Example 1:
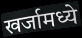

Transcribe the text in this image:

खर्जामध्ये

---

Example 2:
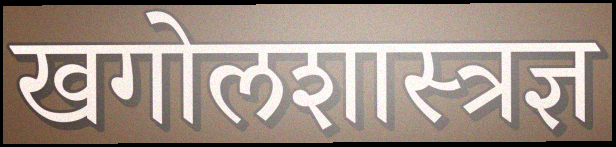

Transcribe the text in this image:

खगोलशास्त्रज्ञ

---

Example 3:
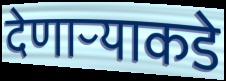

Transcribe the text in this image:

देणाऱ्याकडे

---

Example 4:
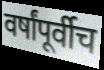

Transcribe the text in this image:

वर्षांपूर्वीच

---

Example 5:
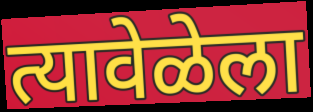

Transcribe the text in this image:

त्यावेळेला